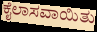
ಕೈಲಾಸವಾಯಿತು